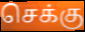
செக்கு